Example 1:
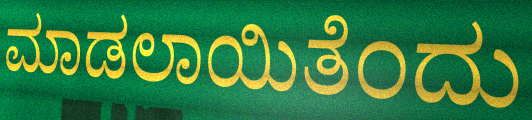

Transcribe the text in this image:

ಮಾಡಲಾಯಿತೆಂದು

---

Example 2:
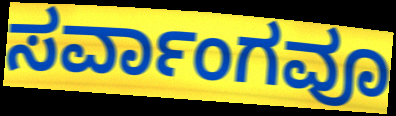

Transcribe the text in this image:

ಸರ್ವಾಂಗವೂ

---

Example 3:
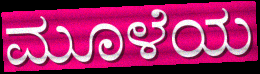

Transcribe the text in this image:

ಮೂಳೆಯ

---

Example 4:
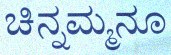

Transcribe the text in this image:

ಚಿನ್ನಮ್ಮನೂ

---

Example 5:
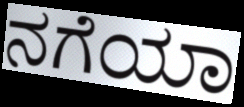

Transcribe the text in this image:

ನಗೆಯಾ